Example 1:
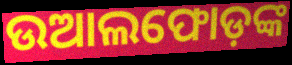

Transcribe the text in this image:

ଉଆଲଫୋଡ଼ଙ୍କ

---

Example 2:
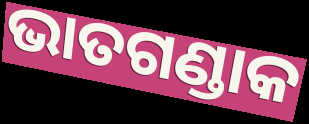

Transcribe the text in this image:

ଭାତଗଣ୍ଡାକ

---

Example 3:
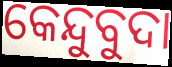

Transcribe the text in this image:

କେନ୍ଦୁବୁଦା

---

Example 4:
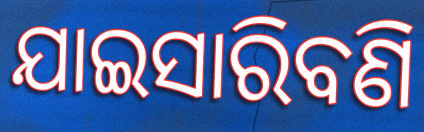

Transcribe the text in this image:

ଯାଇସାରିବଣି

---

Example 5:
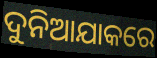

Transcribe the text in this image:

ଦୁନିଆଯାକରେ